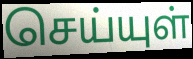
செய்யுள்